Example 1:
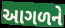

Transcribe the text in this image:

આગળને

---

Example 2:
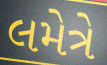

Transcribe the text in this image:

લમેત્રે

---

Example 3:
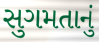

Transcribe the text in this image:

સુગમતાનું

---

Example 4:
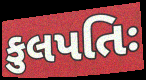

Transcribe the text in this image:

કુલપતિઃ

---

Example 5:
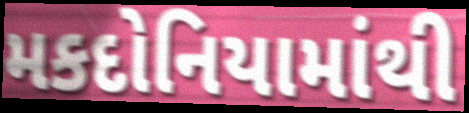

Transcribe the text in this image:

મકદોનિયામાંથી